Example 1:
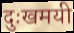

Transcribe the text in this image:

दुःखमयी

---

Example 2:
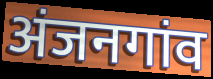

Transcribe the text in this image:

अंजनगांव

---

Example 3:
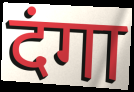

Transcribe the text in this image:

दंगा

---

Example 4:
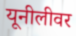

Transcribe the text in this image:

यूनीलीवर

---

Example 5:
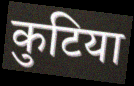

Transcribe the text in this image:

कुटिया